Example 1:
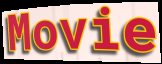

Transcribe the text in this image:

Movie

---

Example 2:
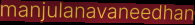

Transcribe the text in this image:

manjulanavaneedhan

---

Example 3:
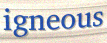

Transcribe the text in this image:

igneous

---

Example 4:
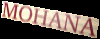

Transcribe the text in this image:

MOHANA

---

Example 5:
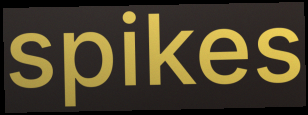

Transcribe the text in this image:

spikes